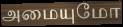
அமையுமோ